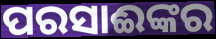
ପରସାଈଙ୍କର